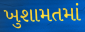
ખુશામતમાં